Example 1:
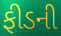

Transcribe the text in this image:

ફીડની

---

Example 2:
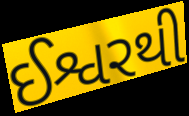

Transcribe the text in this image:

ઈશ્વરથી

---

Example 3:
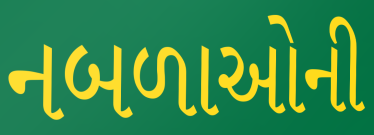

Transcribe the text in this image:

નબળાઓની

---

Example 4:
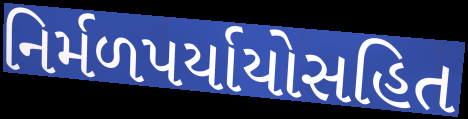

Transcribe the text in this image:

નિર્મળપર્યાયોસહિત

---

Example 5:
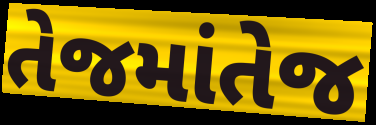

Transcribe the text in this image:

તેજમાંતેજ